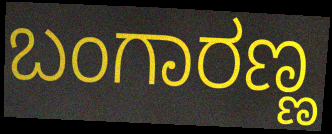
ಬಂಗಾರಣ್ಣ